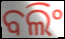
ବଲିଂ